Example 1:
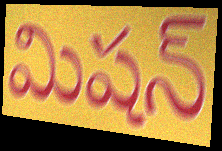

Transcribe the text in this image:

మిషన్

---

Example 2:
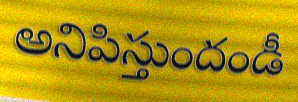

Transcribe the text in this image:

అనిపిస్తుందండీ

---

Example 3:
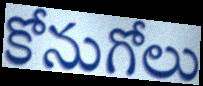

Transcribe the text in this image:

కోనుగోలు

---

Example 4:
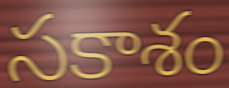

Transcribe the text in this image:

సకాశం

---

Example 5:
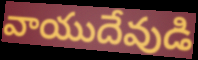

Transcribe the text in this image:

వాయుదేవుడి